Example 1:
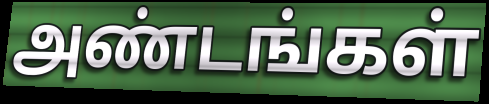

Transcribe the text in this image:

அண்டங்கள்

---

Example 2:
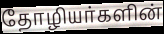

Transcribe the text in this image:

தோழியர்களின்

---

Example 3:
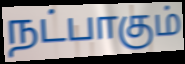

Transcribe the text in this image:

நட்பாகும்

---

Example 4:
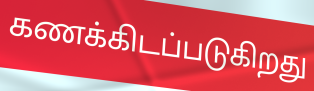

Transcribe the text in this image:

கணக்கிடப்படுகிறது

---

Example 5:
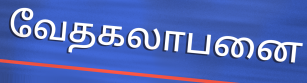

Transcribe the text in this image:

வேதகலாபனை